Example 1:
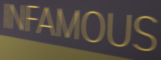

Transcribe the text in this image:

INFAMOUS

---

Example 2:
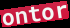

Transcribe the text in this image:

ontor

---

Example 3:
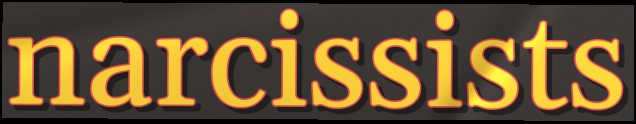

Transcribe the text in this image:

narcissists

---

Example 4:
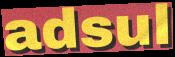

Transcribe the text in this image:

adsul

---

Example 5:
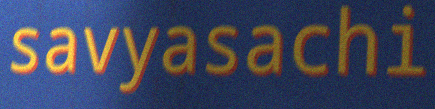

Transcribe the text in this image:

savyasachi